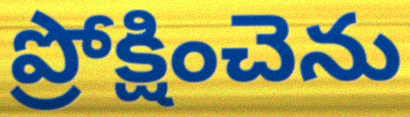
ప్రోక్షించెను